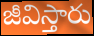
జీవిస్తారు